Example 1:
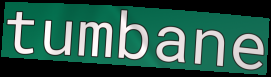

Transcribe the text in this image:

tumbane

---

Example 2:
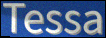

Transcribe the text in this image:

Tessa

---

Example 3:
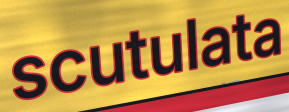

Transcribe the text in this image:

scutulata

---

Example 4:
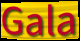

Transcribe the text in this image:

Gala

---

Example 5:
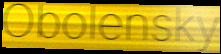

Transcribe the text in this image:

Obolensky